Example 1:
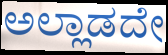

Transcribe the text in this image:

ಅಲ್ಲಾಡದೇ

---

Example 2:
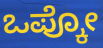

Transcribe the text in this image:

ಒಪ್ಕೋ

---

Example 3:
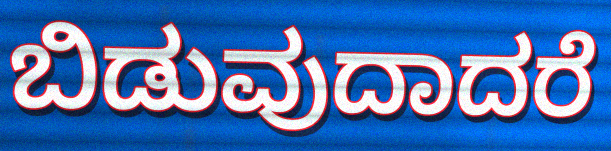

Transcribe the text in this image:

ಬಿಡುವುದಾದರೆ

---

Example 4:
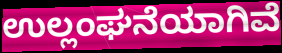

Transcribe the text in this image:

ಉಲ್ಲಂಘನೆಯಾಗಿವೆ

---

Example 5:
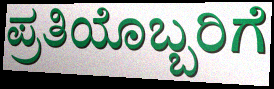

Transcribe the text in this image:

ಪ್ರತಿಯೊಬ್ಬರಿಗೆ